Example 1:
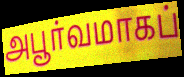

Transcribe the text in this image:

அபூர்வமாகப்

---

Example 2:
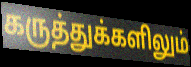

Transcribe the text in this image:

கருத்துக்களிலும்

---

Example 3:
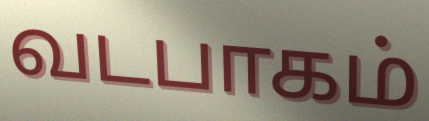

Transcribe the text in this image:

வடபாகம்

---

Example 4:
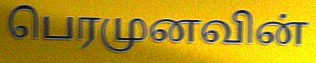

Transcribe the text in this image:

பெரமுனவின்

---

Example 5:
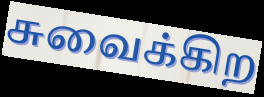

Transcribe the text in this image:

சுவைக்கிற